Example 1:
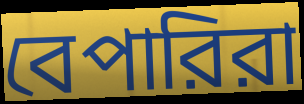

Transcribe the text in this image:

বেপারিরা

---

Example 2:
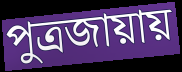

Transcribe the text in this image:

পুত্রজায়ায়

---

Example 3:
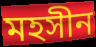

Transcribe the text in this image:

মহসীন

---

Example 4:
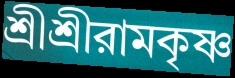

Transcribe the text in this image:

শ্রীশ্রীরামকৃষ্ণ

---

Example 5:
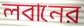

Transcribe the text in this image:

লবানের